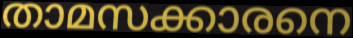
താമസക്കാരനെ